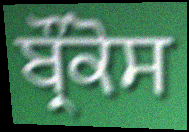
ਬ੍ਰੌਂਕੋਸ